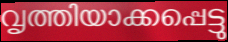
വൃത്തിയാക്കപ്പെട്ടു